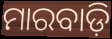
ମାରବାଡ଼ି